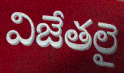
విజేతలై